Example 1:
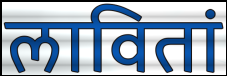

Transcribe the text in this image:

लावितां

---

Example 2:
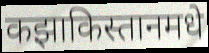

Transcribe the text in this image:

कझाकिस्तानमधे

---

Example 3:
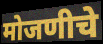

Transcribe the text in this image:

मोजणीचे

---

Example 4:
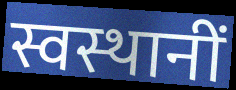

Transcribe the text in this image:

स्वस्थानीं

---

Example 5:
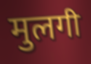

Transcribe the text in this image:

मुलगी